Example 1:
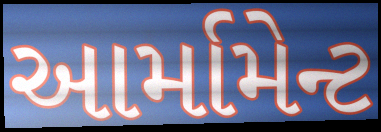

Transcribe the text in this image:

આર્મામેન્ટ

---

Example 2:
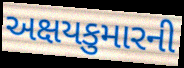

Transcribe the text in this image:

અક્ષયકુમારની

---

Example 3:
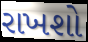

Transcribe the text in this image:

રાખશો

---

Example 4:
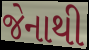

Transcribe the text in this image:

જેનાથી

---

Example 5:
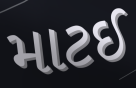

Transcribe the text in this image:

માટઈ